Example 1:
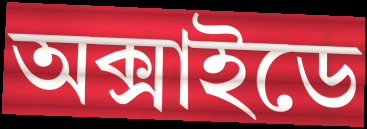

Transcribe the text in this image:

অক্সাইডে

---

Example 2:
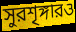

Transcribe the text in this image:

সুরশৃঙ্গারও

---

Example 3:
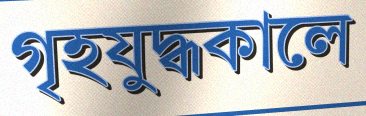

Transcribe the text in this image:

গৃহযুদ্ধকালে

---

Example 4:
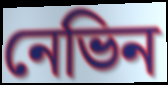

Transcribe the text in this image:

নেভিন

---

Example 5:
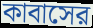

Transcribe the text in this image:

কাবাসের